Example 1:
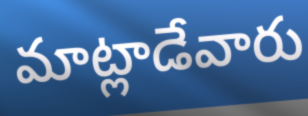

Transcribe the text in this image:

మాట్లాడేవారు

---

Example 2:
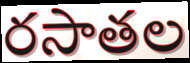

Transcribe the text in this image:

రసాతల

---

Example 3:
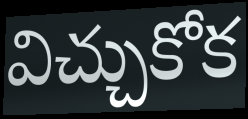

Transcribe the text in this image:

విచ్చుకోక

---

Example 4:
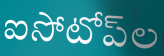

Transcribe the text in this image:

ఐసోటోప్‌ల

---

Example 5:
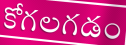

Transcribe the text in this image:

కోగలగడం